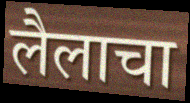
लैलाचा